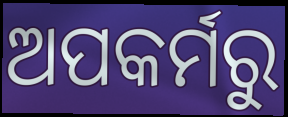
ଅପକର୍ମରୁ